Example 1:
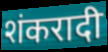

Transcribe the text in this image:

शंकरादी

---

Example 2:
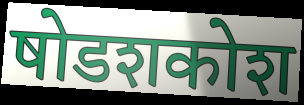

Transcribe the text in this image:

षोडशकोश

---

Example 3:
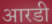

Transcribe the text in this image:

आरडी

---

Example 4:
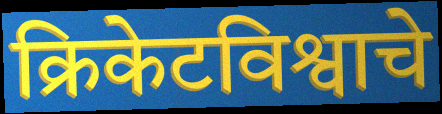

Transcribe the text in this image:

क्रिकेटविश्वाचे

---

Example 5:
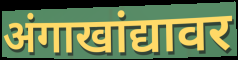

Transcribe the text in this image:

अंगाखांद्यावर